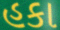
હકા